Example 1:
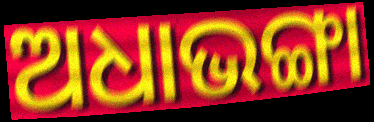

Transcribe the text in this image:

ଅଧାଭଙ୍ଗା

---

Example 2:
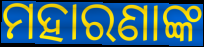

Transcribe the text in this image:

ମହାରଣାଙ୍କ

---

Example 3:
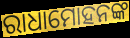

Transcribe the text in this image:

ରାଧାମୋହନଙ୍କ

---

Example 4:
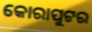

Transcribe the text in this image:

କୋରାପୁଟର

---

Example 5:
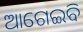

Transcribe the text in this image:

ଆଗେଇବି